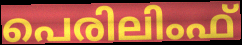
പെരിലിംഫ്